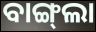
ବାଙ୍ଗ୍‍ଲା